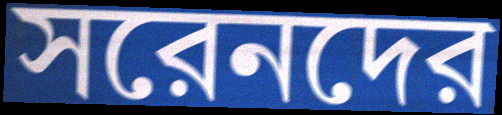
সরেনদের